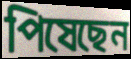
পিষেছেন